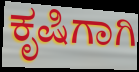
ಕೃಷಿಗಾಗಿ